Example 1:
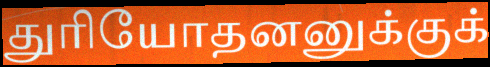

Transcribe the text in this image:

துரியோதனனுக்குக்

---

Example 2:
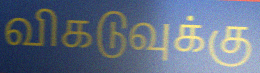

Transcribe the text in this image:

விகடுவுக்கு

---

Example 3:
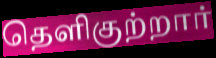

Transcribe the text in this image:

தெளிகுற்றார்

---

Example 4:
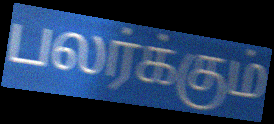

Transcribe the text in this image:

பலர்க்கும்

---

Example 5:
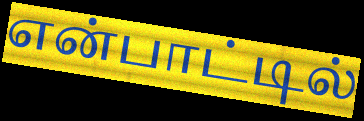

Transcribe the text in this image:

என்பாட்டில்